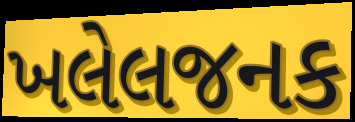
ખલેલજનક